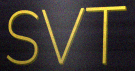
SVT